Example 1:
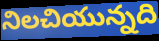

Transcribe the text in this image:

నిలచియున్నది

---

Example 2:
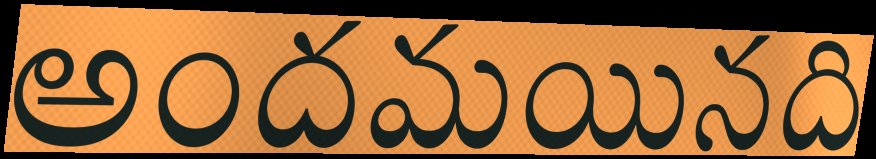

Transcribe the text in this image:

అందమయినది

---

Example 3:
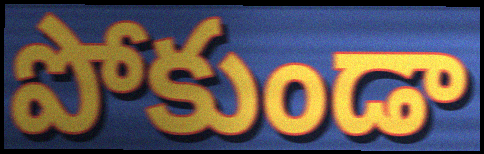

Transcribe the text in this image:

పోకుండా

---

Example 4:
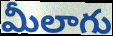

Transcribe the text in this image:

మీలాగు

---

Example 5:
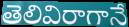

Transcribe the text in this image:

తెలివిరాగానే